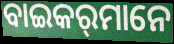
ବାଇକର୍‌ମାନେ